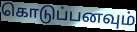
கொடுப்பனவும்